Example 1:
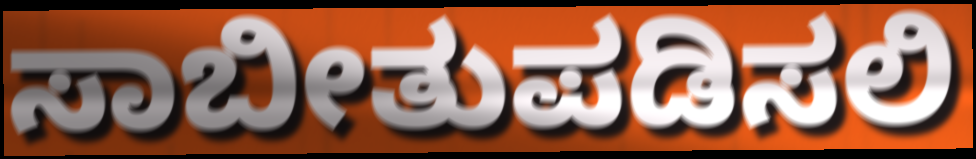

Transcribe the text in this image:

ಸಾಬೀತುಪಡಿಸಲಿ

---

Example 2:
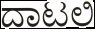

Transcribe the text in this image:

ದಾಟಲಿ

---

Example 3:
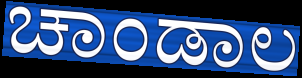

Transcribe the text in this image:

ಚಾಂಡಾಲ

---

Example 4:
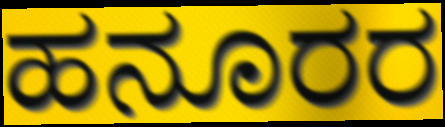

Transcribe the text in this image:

ಹನೂರರ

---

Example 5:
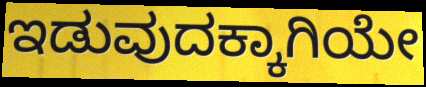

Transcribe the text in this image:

ಇಡುವುದಕ್ಕಾಗಿಯೇ